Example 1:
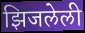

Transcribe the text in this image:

झिजलेली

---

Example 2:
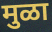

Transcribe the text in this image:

मुळा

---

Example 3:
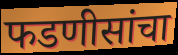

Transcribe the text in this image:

फडणीसांचा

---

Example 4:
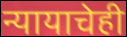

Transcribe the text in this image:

न्यायाचेही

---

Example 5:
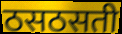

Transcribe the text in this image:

ठसठसती